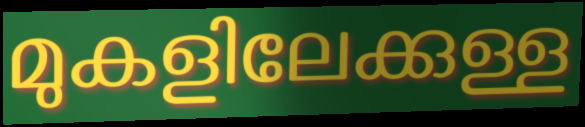
മുകളിലേക്കുള്ള